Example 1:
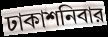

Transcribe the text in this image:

ঢাকাশনিবার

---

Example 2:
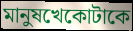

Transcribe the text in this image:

মানুষখেকোটাকে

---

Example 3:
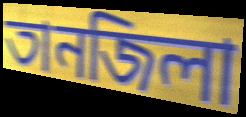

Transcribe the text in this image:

তানজিলা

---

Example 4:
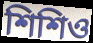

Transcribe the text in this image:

শিশিও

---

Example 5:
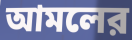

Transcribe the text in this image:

আমলের